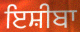
ਇਸ਼ੀਬਾ